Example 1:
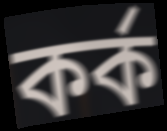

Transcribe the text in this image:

কর্ক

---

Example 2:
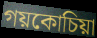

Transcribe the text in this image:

গয়কোচিয়া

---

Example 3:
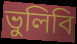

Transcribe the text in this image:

ভুলিবি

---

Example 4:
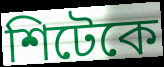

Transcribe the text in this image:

শিটেকে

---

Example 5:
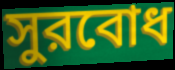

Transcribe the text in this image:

সুরবোধ